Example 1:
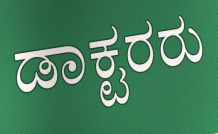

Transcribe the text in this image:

ಡಾಕ್ಟರರು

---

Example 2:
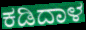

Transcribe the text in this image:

ಕಡಿದಾಳ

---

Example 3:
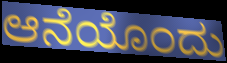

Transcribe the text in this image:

ಆನೆಯೊಂದು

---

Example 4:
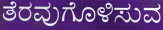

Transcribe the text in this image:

ತೆರವುಗೊಳಿಸುವ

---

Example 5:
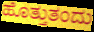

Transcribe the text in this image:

ಹೊತ್ತುತಂದು